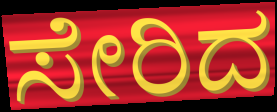
ಸೇರಿದ